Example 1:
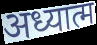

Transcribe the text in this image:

अध्यात्म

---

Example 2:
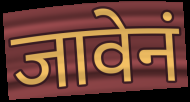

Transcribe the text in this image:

जावेनं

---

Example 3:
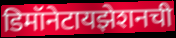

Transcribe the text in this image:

डिमॉनेटायझेशनची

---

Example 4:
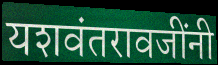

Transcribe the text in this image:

यशवंतरावजींनी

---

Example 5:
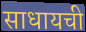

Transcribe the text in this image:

साधायची